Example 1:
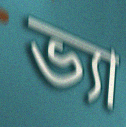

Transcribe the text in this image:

ভ্যা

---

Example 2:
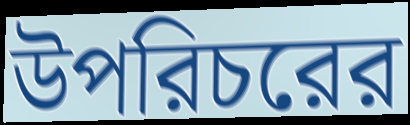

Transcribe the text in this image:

উপরিচরের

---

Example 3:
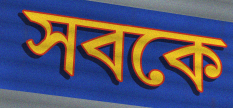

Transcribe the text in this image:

সবকে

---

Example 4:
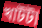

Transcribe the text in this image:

খাটটা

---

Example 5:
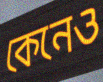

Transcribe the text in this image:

কেনেও